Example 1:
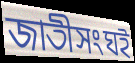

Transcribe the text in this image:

জাতীসংঘই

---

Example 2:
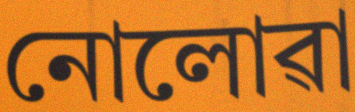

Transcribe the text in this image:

নোলোৱা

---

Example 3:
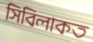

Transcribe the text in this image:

সিবিলাকত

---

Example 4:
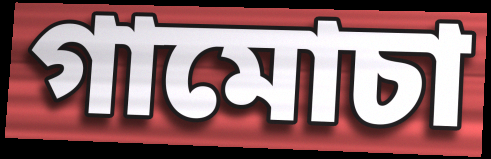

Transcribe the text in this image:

গামোচা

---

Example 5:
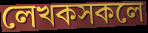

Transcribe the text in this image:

লেখকসকলে